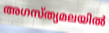
അഗസ്ത്യമലയിൽ